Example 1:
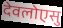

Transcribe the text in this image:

देवलोएसु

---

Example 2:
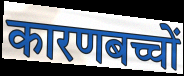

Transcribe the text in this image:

कारणबच्चों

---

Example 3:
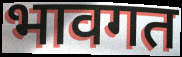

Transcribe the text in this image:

भावगत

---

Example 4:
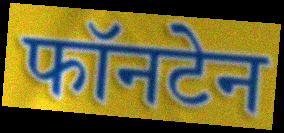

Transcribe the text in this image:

फॉनटेन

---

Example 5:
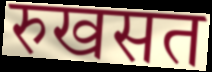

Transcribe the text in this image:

रुखसत